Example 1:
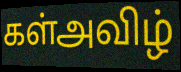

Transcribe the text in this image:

கள்அவிழ்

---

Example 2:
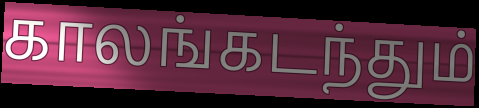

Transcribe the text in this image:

காலங்கடந்தும்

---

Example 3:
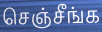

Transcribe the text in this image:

செஞ்சீங்க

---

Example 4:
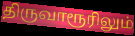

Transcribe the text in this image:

திருவாரூரிலும்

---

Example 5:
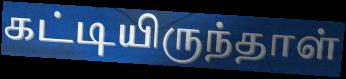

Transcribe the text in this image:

கட்டியிருந்தாள்